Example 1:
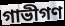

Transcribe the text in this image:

গাভীগণ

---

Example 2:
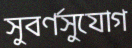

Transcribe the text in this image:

সুবর্ণসুযোগ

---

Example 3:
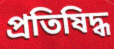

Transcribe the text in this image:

প্রতিষিদ্ধ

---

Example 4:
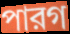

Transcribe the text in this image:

পারগ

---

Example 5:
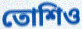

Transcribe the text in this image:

তোশিও